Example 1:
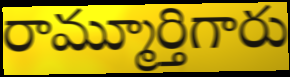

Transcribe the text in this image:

రామ్మూర్తిగారు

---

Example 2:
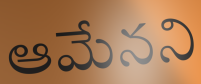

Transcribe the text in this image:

ఆమేనని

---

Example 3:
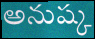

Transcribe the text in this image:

అనుష్క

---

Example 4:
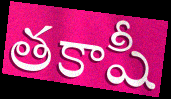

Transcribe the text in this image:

తకాషీ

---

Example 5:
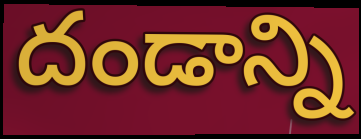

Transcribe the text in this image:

దండాన్ని